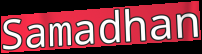
Samadhan